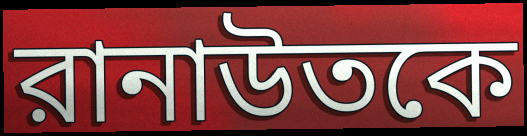
রানাউতকে